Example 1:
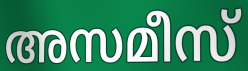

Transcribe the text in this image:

അസമീസ്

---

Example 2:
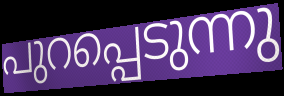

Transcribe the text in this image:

പുറപ്പെടുന്നു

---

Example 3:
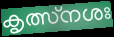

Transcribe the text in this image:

കൃത്സ്നശഃ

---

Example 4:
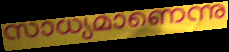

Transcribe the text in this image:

സാധ്യമാണെന്നു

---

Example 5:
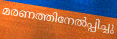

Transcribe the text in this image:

മരണത്തിനേൽപ്പിച്ചു